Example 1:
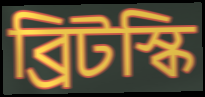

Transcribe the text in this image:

ব্রিটস্কি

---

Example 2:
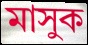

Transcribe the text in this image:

মাসুক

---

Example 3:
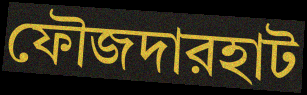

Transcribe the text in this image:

ফৌজদারহাট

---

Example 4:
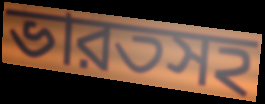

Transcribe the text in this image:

ভারতসহ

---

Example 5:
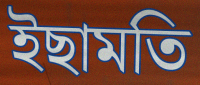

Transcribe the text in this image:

ইছামতি